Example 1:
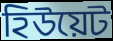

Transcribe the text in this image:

হিউয়েট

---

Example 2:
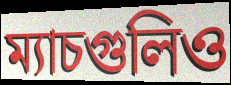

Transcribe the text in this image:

ম্যাচগুলিও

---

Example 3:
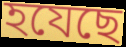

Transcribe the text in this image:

হযেছে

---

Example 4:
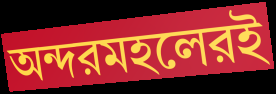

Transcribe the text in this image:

অন্দরমহলেরই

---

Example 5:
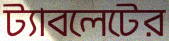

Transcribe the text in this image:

ট্যাবলেটের